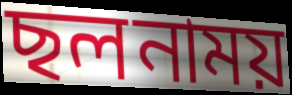
ছলনাময়